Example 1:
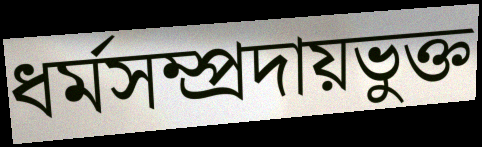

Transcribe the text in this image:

ধর্মসম্প্রদায়ভুক্ত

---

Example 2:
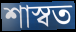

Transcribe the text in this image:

শাস্বত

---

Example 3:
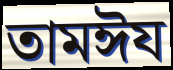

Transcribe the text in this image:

তামঈয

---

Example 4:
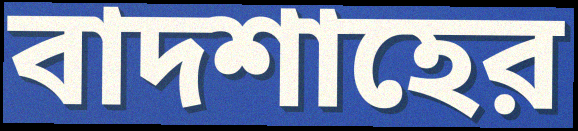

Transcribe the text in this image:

বাদশাহের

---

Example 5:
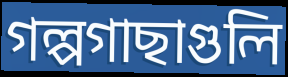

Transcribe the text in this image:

গল্পগাছাগুলি